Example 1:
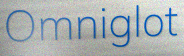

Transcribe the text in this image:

Omniglot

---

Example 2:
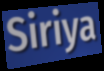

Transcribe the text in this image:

Siriya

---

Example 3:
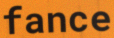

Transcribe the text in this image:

fance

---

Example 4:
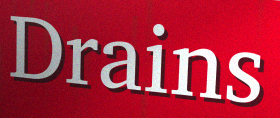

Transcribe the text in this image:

Drains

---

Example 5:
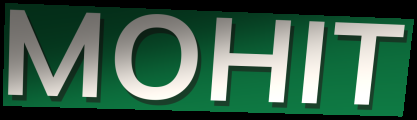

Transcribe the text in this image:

MOHIT